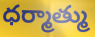
ధర్మాత్ము